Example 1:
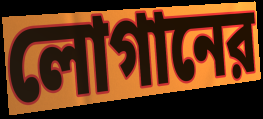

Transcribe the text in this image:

লোগানের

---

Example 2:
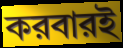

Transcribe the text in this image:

করবারই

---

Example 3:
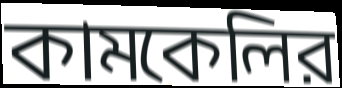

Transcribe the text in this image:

কামকেলির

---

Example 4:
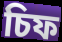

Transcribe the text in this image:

চিফ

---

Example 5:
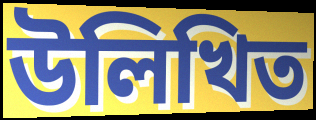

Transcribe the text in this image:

উলিখিত